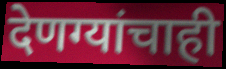
देणग्यांचाही